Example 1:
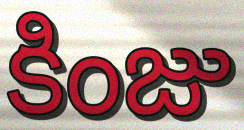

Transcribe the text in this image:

కింజు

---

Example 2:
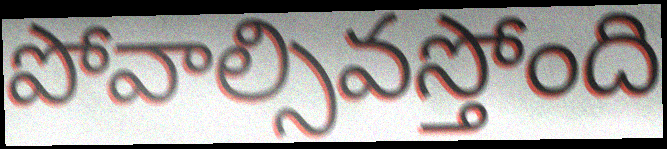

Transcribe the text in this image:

పోవాల్సివస్తోంది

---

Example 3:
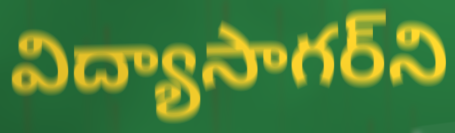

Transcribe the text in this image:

విద్యాసాగర్‌ని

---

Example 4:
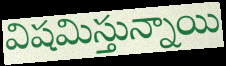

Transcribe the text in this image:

విషమిస్తున్నాయి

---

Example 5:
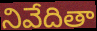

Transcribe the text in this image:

నివేదితా